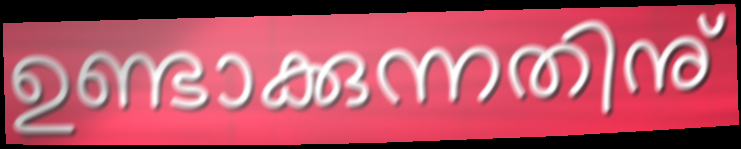
ഉണ്ടാക്കുന്നതിനു്